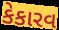
કેકારવ